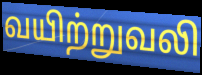
வயிற்றுவலி